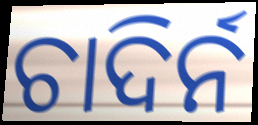
ଚାଦିର୍ନ